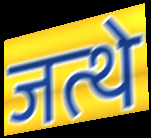
जत्थे